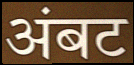
अंबट